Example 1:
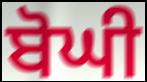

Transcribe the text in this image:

ਬੋਘੀ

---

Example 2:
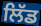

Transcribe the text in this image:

ਲਿੱਡ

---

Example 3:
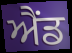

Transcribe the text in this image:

ਐੰਡ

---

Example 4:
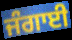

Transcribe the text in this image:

ਜੰਗਾਈ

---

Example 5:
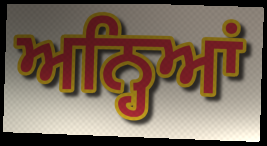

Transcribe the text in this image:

ਅਨ੍ਹਿਆਂ